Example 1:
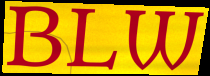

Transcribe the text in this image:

BLW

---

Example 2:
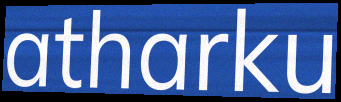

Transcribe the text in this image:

atharku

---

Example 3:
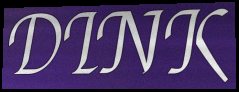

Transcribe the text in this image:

DINK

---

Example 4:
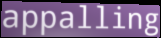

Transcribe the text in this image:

appalling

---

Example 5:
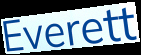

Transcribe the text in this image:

Everett